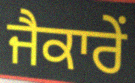
ਜੈਕਾਰੇਂ